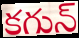
కగున్